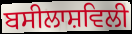
ਬਸੀਲਾਸ਼ਵਿਲੀ